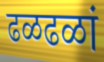
ढळढळां